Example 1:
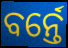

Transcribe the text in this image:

ବର୍ନ୍ତେ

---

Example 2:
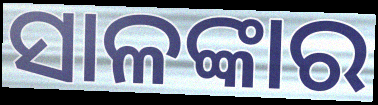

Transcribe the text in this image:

ସାଳଙ୍କାର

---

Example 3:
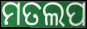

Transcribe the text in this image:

ମତଲପ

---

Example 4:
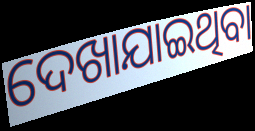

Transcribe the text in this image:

ଦେଖାଯାଇଥିବା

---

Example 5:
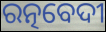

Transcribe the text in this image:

ରତ୍ନବେଦୀ